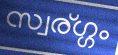
സ്വര്ഗ്ഗം